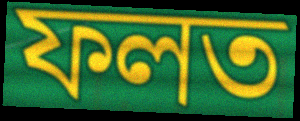
ফলত